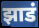
झाडं